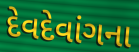
દેવદેવાંગના